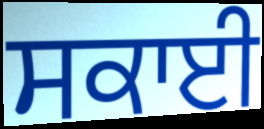
ਸਕਾਈ